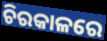
ଚିରକାଳରେ